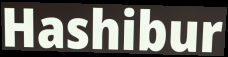
Hashibur